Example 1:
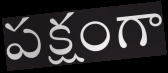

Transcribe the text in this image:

పక్షంగా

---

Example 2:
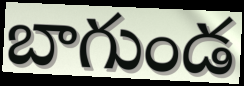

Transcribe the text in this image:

బాగుండ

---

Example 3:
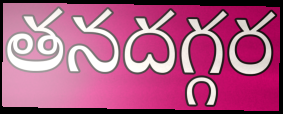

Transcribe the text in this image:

తనదగ్గర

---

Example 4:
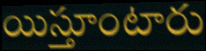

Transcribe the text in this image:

యిస్తూంటారు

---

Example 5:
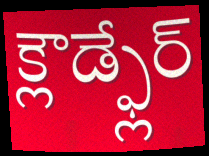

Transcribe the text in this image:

క్లౌడ్ఫ్లేర్